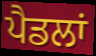
ਪੈਡਲਾਂ